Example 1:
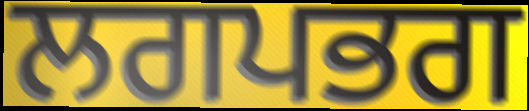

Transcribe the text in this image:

ਲਗਪਭਗ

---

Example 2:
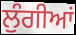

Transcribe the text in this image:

ਲੁੰਗੀਆਂ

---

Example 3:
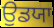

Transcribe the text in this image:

ਉਡਯਾ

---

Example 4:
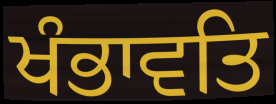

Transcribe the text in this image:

ਖੰਭਾਵਤਿ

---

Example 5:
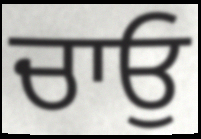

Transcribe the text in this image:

ਚਾਓੁ